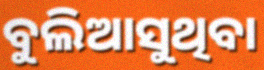
ବୁଲିଆସୁଥିବା